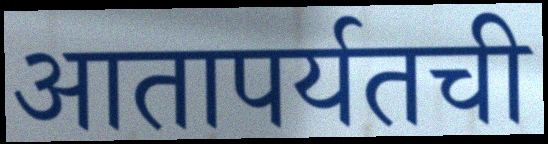
आतापर्यतची